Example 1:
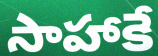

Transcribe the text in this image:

సాహాకే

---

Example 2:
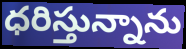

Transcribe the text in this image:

ధరిస్తున్నాను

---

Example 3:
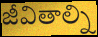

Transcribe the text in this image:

జీవితాల్ని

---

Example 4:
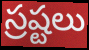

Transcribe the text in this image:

స్రష్టలు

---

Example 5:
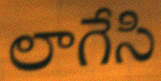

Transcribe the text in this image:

లాగేసి